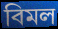
বিমল